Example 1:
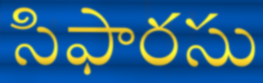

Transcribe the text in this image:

సిఫారసు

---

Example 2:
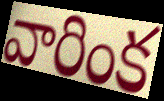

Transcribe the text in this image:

వారింక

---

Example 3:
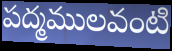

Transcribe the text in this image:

పద్మములవంటి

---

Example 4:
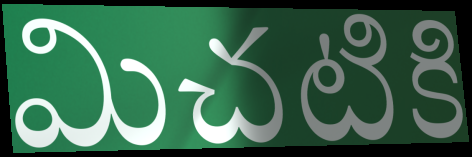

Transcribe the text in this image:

మిచటికి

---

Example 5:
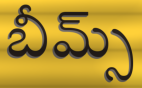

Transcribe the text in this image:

బీమ్స్